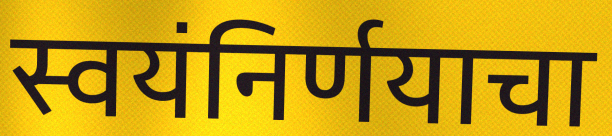
स्वयंनिर्णयाचा